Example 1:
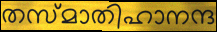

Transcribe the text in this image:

തസ്മാതിഹാനന്ദ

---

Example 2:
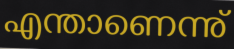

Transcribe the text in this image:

എന്താണെന്നു്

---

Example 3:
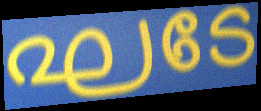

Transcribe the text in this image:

ഘടേ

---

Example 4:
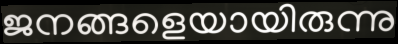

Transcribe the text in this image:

ജനങ്ങളെയായിരുന്നു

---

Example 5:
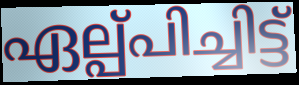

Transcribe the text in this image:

ഏല്പ്പിച്ചിട്ട്